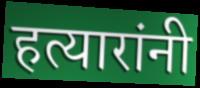
हत्यारांनी